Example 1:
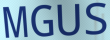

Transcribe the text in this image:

MGUS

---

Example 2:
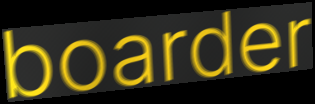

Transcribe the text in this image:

boarder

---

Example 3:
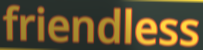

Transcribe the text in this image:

friendless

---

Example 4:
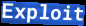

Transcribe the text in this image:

Exploit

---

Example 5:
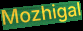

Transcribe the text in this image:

Mozhigal